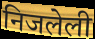
निजलेली